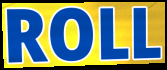
ROLL